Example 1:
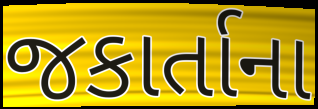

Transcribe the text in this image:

જકાર્તાના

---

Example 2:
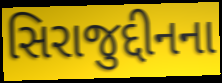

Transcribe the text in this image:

સિરાજુદ્દીનના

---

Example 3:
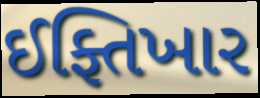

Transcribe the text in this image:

ઈફ્તિખાર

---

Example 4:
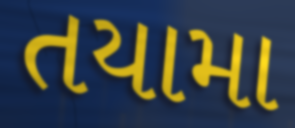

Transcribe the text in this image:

તયામા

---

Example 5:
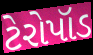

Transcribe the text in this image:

ટેરોપૉડ